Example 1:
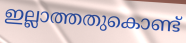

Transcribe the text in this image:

ഇല്ലാത്തതുകൊണ്ട്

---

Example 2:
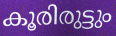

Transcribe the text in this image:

കൂരിരുട്ടും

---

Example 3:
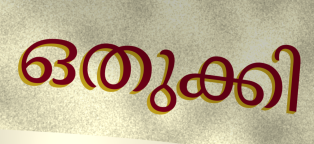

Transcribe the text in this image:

ഒതുക്കി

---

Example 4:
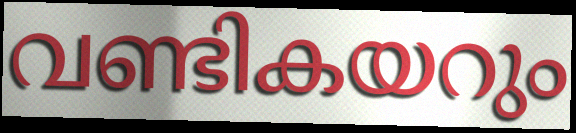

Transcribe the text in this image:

വണ്ടികയറും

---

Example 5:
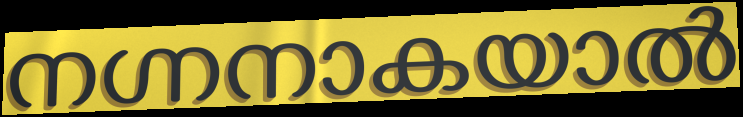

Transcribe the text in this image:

നഗ്നനാകയാൽ